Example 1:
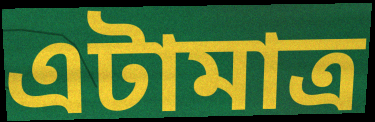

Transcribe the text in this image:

এটামাত্ৰ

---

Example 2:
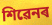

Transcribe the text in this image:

শিৱেনৰ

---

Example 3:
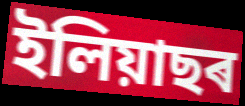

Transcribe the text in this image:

ইলিয়াছৰ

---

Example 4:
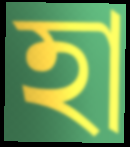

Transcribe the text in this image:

হা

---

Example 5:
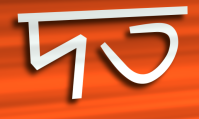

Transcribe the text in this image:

দত